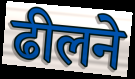
ढीलने